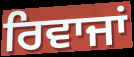
ਰਿਵਾਜਾਂ